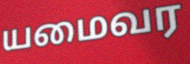
யமைவர